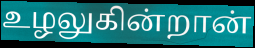
உழலுகின்றான்